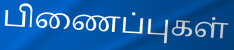
பிணைப்புகள்